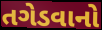
તગેડવાનો